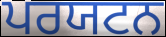
ਪਰਯਟਨ